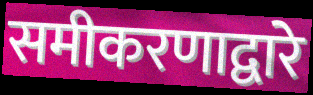
समीकरणाद्वारे